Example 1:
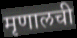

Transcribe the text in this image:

मृणालची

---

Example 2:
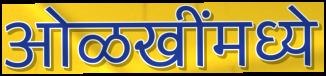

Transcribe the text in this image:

ओळखींमध्ये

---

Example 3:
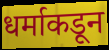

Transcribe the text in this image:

धर्माकडून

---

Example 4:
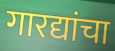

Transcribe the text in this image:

गारद्यांचा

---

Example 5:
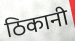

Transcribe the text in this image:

ठिकानी